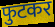
फुटकर